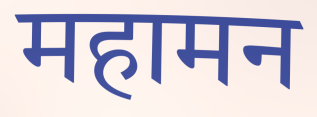
महामन